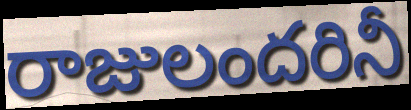
రాజులందరినీ